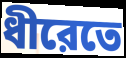
ধীরেতে